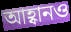
আহ্বানও